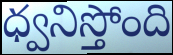
ధ్వనిస్తోంది